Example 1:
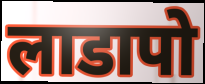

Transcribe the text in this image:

लाडापो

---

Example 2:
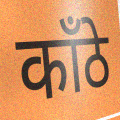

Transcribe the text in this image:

काँठे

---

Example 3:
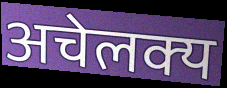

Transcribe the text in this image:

अचेलक्य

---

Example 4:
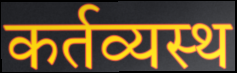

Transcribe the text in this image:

कर्तव्यस्थ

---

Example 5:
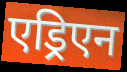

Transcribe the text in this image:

एड्रिएन